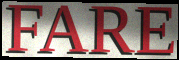
FARE